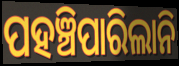
ପହଞ୍ଚିପାରିଲାନି